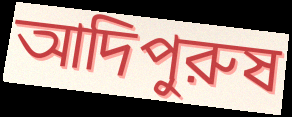
আদিপুৰুষ